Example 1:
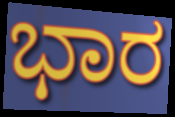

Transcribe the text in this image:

ಭಾರ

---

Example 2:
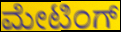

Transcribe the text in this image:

ಮೇಟಿಂಗ್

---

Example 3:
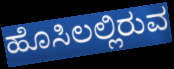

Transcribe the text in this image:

ಹೊಸಿಲಲ್ಲಿರುವ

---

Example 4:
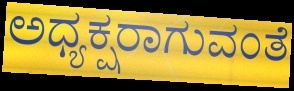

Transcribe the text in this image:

ಅಧ್ಯಕ್ಷರಾಗುವಂತೆ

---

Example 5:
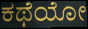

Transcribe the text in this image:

ಕಥೆಯೋ